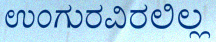
ಉಂಗುರವಿರಲಿಲ್ಲ